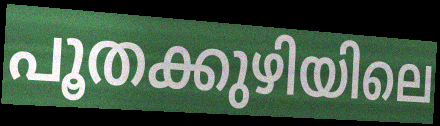
പൂതക്കുഴിയിലെ